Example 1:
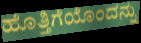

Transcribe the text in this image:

ಹೊತ್ತಿಗೆಯೊಂದನ್ನು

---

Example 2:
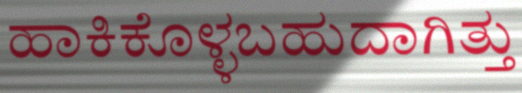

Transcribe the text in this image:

ಹಾಕಿಕೊಳ್ಳಬಹುದಾಗಿತ್ತು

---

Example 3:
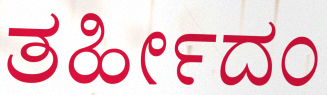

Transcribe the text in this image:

ತರ್ಹೀದಂ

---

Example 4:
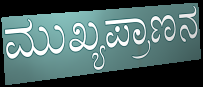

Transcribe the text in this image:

ಮುಖ್ಯಪ್ರಾಣನ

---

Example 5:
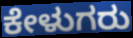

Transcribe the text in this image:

ಕೇಳುಗರು